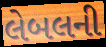
લેબલની